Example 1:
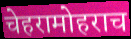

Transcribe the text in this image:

चेहरामोहराच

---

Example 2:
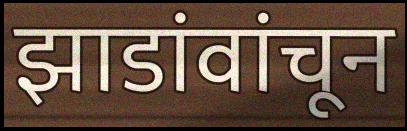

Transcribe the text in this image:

झाडांवांचून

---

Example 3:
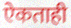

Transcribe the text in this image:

ऐकताही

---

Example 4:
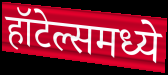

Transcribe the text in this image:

हॉटेल्समध्ये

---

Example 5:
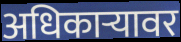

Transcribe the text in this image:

अधिकाऱ्यावर